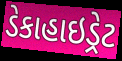
ડેકાહાઇડ્રેટ